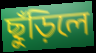
ছুঁড়িলে